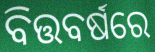
ବିତ୍ତବର୍ଷରେ